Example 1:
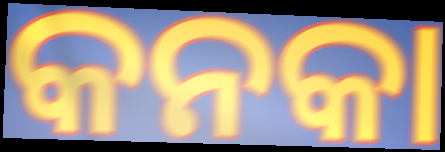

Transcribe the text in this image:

କନକା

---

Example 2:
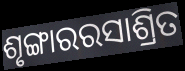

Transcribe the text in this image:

ଶୃଙ୍ଗାରରସାଶ୍ରିତ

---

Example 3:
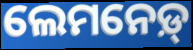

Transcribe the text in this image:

ଲେମନେଡ଼୍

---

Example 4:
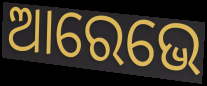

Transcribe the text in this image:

ଆରେଭେ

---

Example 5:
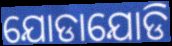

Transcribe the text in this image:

ଯୋଡାଯୋଡି